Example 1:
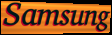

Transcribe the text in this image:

Samsung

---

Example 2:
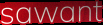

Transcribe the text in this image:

sawant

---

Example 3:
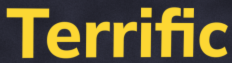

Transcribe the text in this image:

Terrific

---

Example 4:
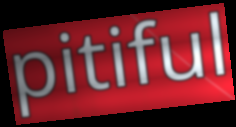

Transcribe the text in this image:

pitiful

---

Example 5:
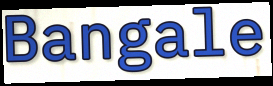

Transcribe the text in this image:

Bangale